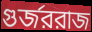
গুর্জররাজ